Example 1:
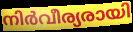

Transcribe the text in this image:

നിർവീര്യരായി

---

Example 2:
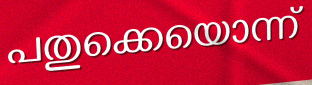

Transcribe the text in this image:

പതുക്കെയൊന്ന്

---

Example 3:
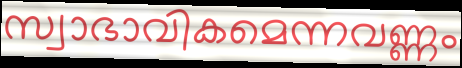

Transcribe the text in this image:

സ്വാഭാവികമെന്നവണ്ണം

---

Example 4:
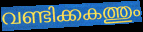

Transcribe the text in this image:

വണ്ടിക്കകത്തും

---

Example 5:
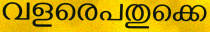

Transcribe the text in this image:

വളരെപതുക്കെ